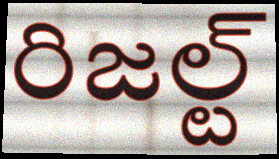
రిజల్ట్